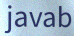
javab